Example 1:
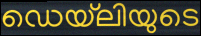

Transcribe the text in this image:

ഡെയ്‌ലിയുടെ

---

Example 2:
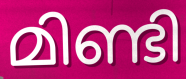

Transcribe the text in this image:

മിണ്ടി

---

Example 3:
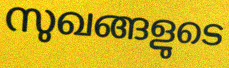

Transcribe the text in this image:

സുഖങ്ങളുടെ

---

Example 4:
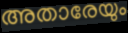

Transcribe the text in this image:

അതാരേയും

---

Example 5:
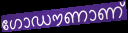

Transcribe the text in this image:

ഗോഡൗണാണ്